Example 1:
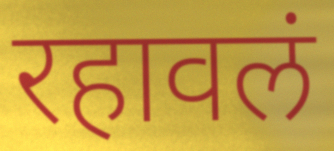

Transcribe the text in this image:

रहावलं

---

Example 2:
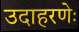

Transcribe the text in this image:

उदाहरणेः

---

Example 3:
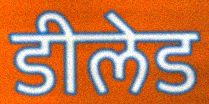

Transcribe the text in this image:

डीलेड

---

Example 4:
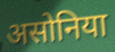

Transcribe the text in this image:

असोनिया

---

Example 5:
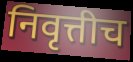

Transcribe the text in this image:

निवृत्तीच